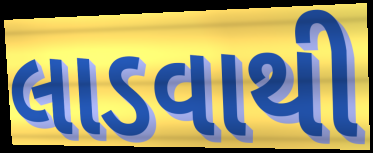
લાડવાથી